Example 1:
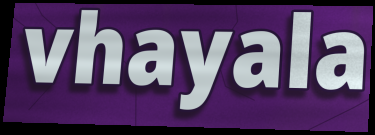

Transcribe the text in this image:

vhayala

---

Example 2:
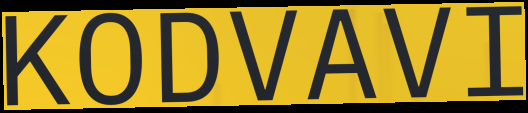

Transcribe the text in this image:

KODVAVI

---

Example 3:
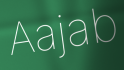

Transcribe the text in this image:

Aajab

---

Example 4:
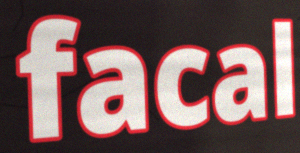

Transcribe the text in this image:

facal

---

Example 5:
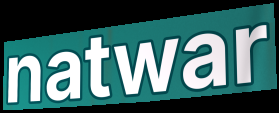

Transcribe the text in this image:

natwar